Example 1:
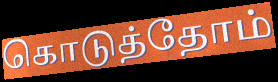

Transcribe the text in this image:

கொடுத்தோம்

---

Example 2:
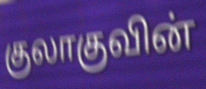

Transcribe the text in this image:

குலாகுவின்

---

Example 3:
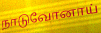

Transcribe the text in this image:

நாடுவோனாய்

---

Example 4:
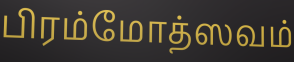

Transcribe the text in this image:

பிரம்மோத்ஸவம்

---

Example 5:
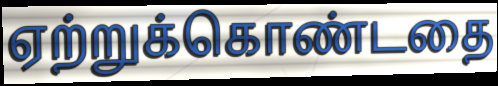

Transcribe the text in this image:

ஏற்றுக்கொண்டதை